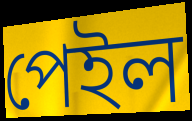
পেইল